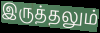
இருத்தலும்